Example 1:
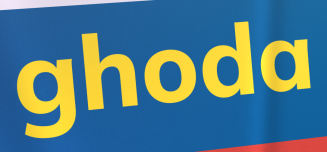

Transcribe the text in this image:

ghoda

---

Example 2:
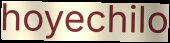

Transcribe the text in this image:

hoyechilo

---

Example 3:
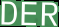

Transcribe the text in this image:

DER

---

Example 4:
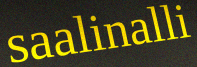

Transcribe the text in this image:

saalinalli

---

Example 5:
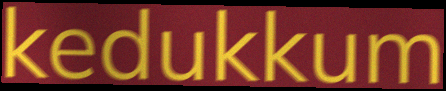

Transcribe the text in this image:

kedukkum